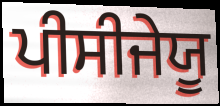
ਪੀਸੀਜੇਯੂ